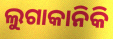
ଲୁଗାକାନିକି